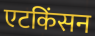
एटकिंसन